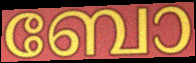
ബോ